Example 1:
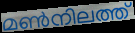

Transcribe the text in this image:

മൺനിലത്ത്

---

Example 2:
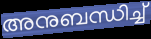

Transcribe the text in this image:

അനുബന്ധിച്ച്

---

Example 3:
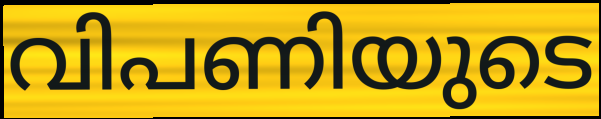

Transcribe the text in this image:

വിപണിയുടെ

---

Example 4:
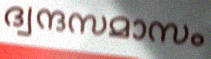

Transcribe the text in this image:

ദ്വന്ദസമാസം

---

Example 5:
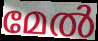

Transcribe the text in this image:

മേൽ